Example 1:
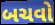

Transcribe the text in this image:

બચવો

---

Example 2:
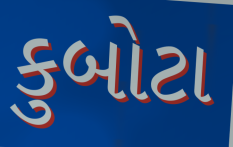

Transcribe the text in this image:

કુબોટા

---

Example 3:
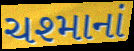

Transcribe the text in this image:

ચશ્માનાં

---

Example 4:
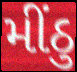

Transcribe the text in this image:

મીંઠુ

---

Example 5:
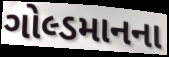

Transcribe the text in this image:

ગોલ્ડમાનના